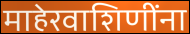
माहेरवाशिणींना